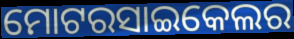
ମୋଟରସାଇକେଲର